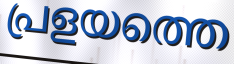
പ്രളയത്തെ